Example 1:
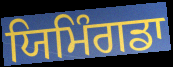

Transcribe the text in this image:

ਯਿਮਿੰਗਡਾ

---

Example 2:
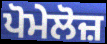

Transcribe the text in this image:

ਪੋਮੇਲੋਜ਼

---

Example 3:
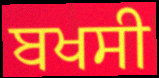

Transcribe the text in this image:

ਬਖਸੀ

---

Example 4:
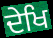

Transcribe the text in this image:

ਦੇਖਿ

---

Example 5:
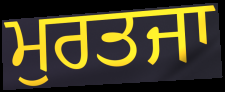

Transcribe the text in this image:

ਮੁਰਤਜਾ